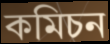
কমিচন